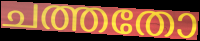
ചത്തതോ